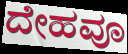
ದೇಹವೂ